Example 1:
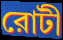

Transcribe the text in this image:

রোটী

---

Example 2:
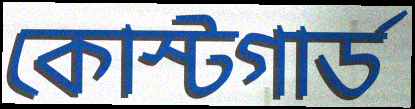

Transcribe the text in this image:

কোস্টগার্ড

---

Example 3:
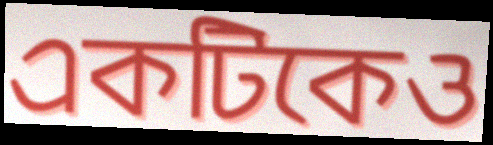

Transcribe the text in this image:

একটিকেও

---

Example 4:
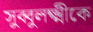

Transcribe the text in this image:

সুব্বুলক্ষ্মীকে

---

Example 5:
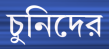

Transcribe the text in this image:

চুনিদের